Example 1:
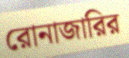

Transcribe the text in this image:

রোনাজারির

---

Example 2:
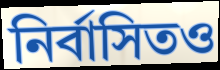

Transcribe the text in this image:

নির্বাসিতও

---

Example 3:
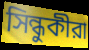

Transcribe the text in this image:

সিন্ধুকীরা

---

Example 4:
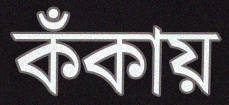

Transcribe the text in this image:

কঁকায়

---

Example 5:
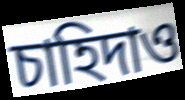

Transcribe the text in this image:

চাহিদাও